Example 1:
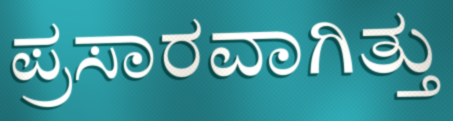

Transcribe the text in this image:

ಪ್ರಸಾರವಾಗಿತ್ತು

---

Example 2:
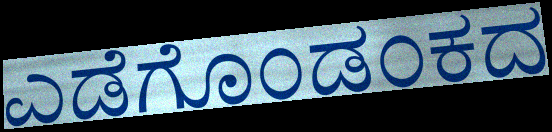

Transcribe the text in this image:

ಎಡೆಗೊಂಡಂಕದ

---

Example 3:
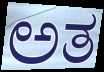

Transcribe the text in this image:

ಅತ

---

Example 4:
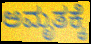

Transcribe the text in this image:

ಅಮೃತಕ್ಕೆ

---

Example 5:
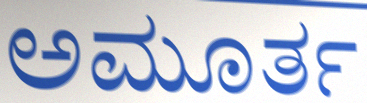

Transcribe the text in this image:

ಅಮೂರ್ತ